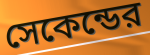
সেকেন্ডের